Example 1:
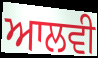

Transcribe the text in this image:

ਆਲਵੀ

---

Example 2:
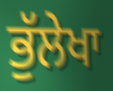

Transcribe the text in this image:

ਭੁੱਲੇਖਾ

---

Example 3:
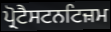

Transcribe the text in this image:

ਪ੍ਰੋਟੈਸਟਨਟਿਜ਼ਮ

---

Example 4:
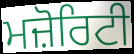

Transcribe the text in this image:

ਮਜ਼ੋਰਿਟੀ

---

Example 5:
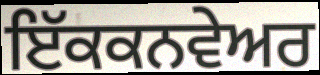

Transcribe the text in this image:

ਇੱਕਕਨਵੇਅਰ